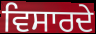
ਵਿਸਾਰਦੇ